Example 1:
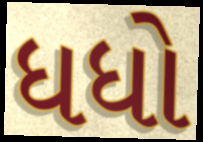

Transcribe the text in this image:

ધધો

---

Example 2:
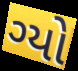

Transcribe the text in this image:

ગ્યો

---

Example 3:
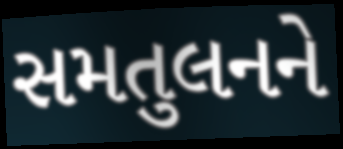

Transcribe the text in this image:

સમતુલનને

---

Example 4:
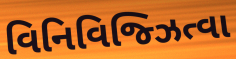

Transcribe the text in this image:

વિનિવિજ્ઝિત્વા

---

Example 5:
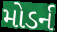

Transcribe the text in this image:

મોડર્ન